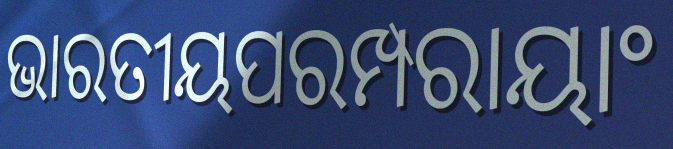
ଭାରତୀୟପରମ୍ପରାୟାଂ